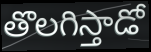
తొలగిస్తాడో